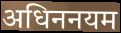
अधिननयम